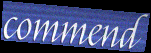
commend